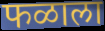
फळाला